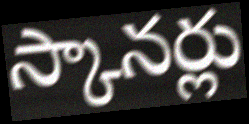
స్కానర్లు